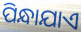
ପିନ୍ଧାଯାଏ